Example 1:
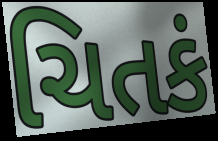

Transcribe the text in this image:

ચિતકં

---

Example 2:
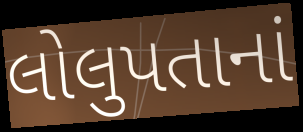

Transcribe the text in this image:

લોલુપતાનાં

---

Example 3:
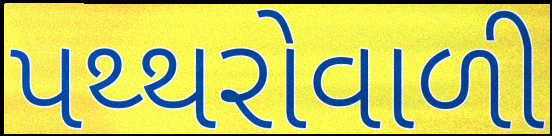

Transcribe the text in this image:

પથ્થરોવાળી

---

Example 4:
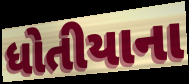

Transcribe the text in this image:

ધોતીયાના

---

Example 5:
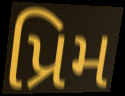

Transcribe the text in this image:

પ્રિમ